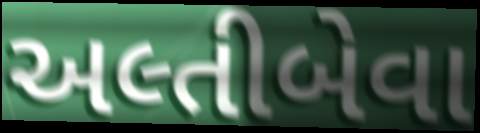
અલ્તીબેવા